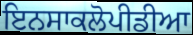
ਇਨਸਾਕਲੋਪੀਡੀਆ